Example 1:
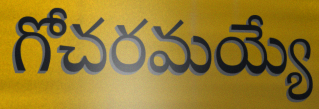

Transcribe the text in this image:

గోచరమయ్యే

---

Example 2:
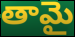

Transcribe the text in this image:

తామై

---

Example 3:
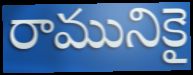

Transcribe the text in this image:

రామునికై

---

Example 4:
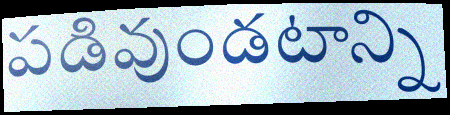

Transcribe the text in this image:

పడివుండటాన్ని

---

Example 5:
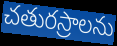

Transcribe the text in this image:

చతురస్రాలను